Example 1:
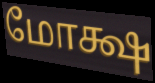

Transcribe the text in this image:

மோக்ஷ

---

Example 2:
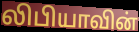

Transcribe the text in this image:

லிபியாவின்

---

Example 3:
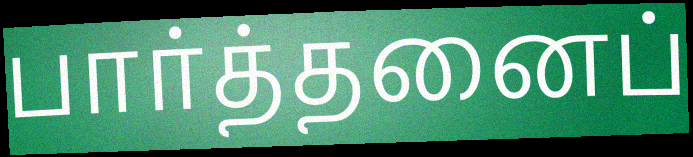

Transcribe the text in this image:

பார்த்தனைப்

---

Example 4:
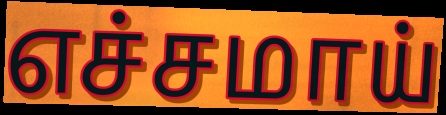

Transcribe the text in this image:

எச்சமாய்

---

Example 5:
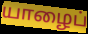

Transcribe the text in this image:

யாழைப்